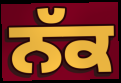
ਨੱਕ